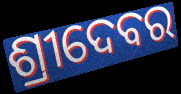
ଶ୍ରୀଦେବର